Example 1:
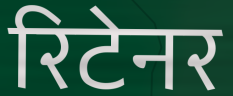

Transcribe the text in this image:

रिटेनर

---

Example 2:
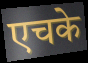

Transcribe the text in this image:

एचके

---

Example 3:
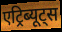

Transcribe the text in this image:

एट्रिब्यूट्स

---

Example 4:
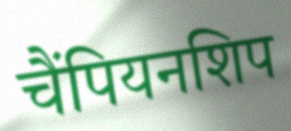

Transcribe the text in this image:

चैंपियनशिप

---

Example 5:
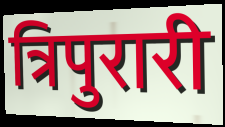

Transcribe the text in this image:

त्रिपुरारी